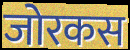
जोरकस